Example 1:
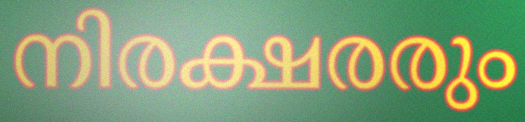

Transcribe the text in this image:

നിരക്ഷരരും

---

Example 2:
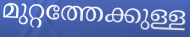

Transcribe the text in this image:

മുറ്റത്തേക്കുള്ള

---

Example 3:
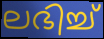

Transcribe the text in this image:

ലഭിച്ച്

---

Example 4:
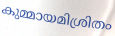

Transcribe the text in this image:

കുമ്മായമിശ്രിതം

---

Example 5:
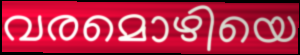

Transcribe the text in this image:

വരമൊഴിയെ